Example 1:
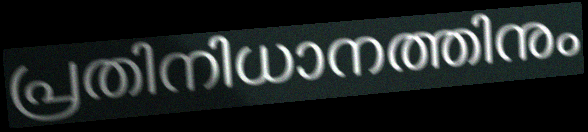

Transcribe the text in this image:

പ്രതിനിധാനത്തിനും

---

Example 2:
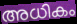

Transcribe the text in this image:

അധികം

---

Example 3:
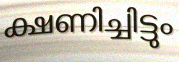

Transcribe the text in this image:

ക്ഷണിച്ചിട്ടും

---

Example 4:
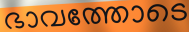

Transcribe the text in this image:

ഭാവത്തോടെ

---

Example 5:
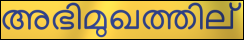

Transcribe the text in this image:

അഭിമുഖത്തില്